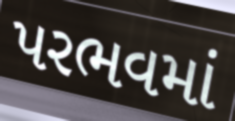
પરભવમાં